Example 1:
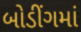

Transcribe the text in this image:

બોડીંગમાં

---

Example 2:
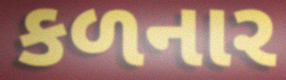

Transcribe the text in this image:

કળનાર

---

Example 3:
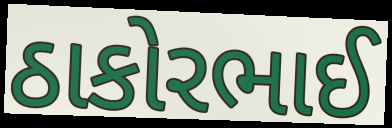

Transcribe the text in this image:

ઠાકોરભાઈ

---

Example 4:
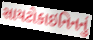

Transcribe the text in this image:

સાયટોકાઇનિનનું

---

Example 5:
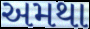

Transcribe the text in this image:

અમથા